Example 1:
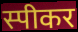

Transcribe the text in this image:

स्पीकर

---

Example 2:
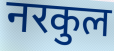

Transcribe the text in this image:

नरकुल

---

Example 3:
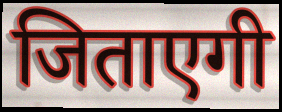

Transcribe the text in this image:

जिताएगी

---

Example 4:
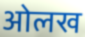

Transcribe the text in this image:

ओलख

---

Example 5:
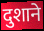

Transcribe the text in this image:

दुशाने